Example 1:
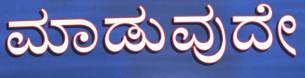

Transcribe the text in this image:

ಮಾಡುವುದೇ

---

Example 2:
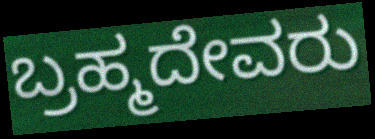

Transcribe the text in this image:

ಬ್ರಹ್ಮದೇವರು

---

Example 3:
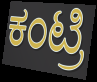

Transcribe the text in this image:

ಕಂಟ್ರಿ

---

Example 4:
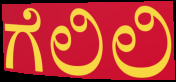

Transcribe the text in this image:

ಗೆಲಿಲಿ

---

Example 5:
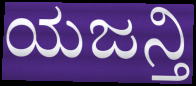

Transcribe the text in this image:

ಯಜನ್ತಿ